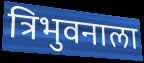
त्रिभुवनाला